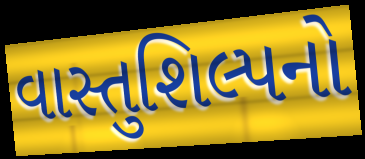
વાસ્તુશિલ્પનો